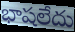
భాషలేదు